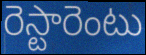
రెస్టారెంటు